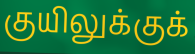
குயிலுக்குக்